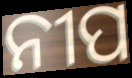
ନୀପ